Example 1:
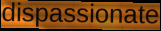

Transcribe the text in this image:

dispassionate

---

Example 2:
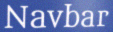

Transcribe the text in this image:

Navbar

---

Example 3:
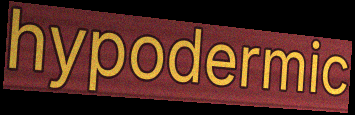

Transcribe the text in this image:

hypodermic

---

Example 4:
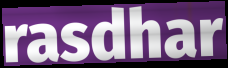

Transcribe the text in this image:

rasdhar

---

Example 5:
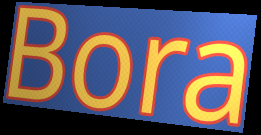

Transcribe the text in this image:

Bora